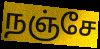
நஞ்சே